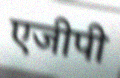
एजीपी